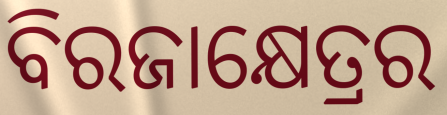
ବିରଜାକ୍ଷେତ୍ରର